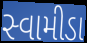
સ્વામીડા